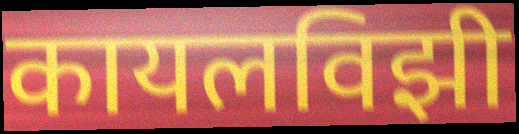
कायलविझी